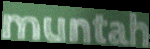
muntah